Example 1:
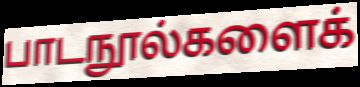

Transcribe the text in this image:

பாடநூல்களைக்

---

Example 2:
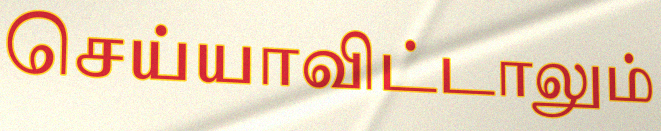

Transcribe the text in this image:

செய்யாவிட்டாலும்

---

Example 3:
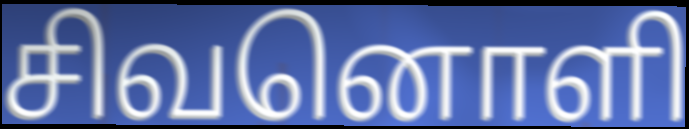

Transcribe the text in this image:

சிவனொளி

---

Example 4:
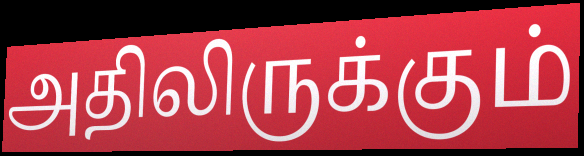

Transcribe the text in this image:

அதிலிருக்கும்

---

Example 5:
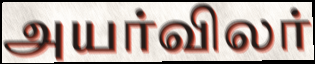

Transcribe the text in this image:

அயர்விலர்